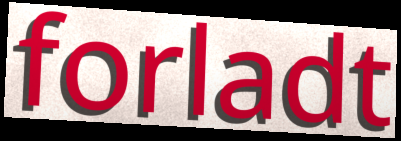
forladt